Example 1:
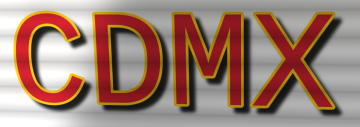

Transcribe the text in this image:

CDMX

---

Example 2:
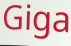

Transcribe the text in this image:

Giga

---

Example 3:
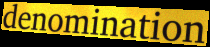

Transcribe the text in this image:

denomination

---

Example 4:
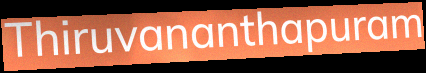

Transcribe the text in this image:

Thiruvananthapuram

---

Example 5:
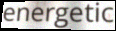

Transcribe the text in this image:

energetic